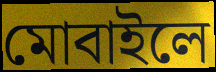
মোবাইলে